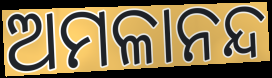
ଅମଳାନନ୍ଦ